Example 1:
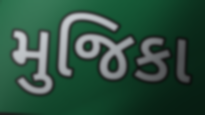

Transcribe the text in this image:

મુજિકા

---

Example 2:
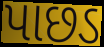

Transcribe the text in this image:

પાછડ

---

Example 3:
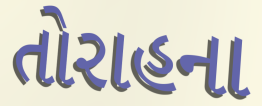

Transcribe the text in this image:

તોરાહના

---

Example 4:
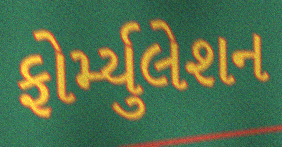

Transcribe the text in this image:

ફોર્મ્યુલેશન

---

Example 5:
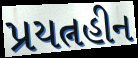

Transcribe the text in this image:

પ્રયત્નહીન